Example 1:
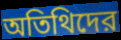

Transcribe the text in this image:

অতিথিদের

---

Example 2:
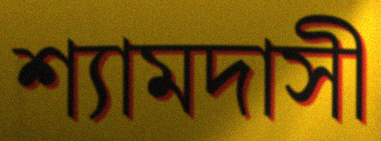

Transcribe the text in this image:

শ্যামদাসী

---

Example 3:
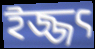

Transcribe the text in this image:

ইজ্জৎ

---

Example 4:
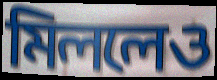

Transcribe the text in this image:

মিললেও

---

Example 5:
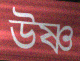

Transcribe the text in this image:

উষ্ণ